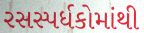
રસસ્પર્ધકોમાંથી